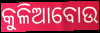
କୁଳିଆବୋଉ